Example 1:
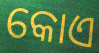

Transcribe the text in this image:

କୋଏ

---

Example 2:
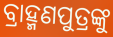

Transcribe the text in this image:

ବ୍ରାହ୍ମଣପୁତ୍ରଙ୍କୁ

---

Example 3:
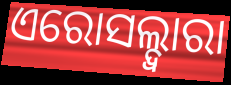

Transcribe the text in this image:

ଏରୋସଲ୍ଦ୍ୱାରା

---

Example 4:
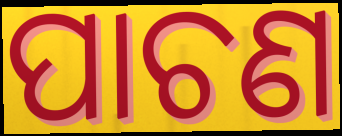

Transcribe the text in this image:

ପାଚଣ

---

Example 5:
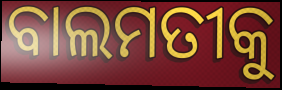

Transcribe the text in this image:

ବାଲମତୀକୁ